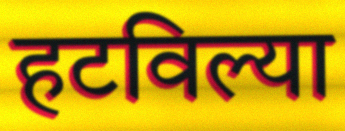
हटविल्या